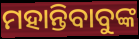
ମହାନ୍ତିବାବୁଙ୍କ